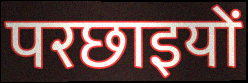
परछाइयों